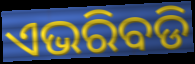
ଏଭରିବଡି